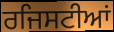
ਰਜਿਸਟੀਆਂ